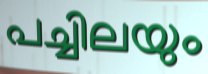
പച്ചിലയും